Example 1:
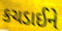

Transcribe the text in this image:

કચડાઈને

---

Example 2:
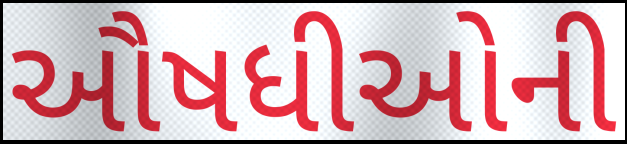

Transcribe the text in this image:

ઔષધીઓની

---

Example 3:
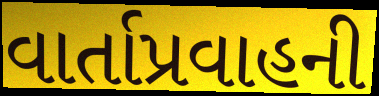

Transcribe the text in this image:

વાર્તાપ્રવાહની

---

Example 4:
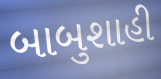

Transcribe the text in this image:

બાબુશાહી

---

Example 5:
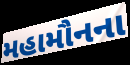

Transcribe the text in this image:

મહામૌનના